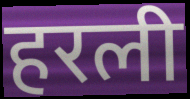
हरली